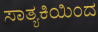
ಸಾತ್ಯಕಿಯಿಂದ